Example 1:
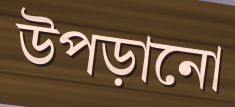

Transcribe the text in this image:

উপড়ানো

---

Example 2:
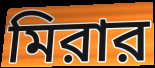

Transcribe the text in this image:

মিরার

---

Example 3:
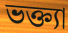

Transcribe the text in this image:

ভক্ত্যা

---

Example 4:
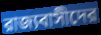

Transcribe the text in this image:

রাজ্যবাসীদের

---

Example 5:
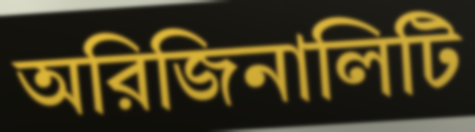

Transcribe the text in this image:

অরিজিনালিটি